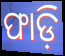
ଫାଡ଼ି